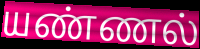
யண்ணல்